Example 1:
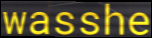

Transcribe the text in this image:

wasshe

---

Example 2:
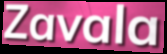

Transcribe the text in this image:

Zavala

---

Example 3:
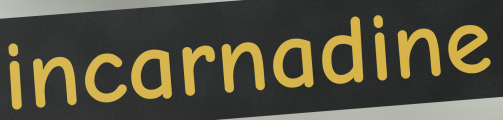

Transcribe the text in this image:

incarnadine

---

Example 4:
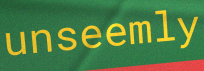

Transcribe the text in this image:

unseemly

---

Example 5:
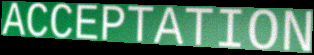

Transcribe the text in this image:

ACCEPTATION